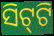
ସିଟ୍‌ଟି